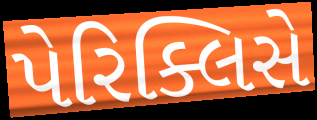
પેરિક્લિસે